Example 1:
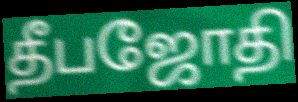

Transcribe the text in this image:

தீபஜோதி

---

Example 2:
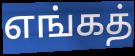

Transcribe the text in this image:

எங்கத்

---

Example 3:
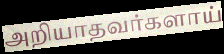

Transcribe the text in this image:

அறியாதவர்களாய்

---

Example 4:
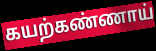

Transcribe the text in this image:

கயற்கண்ணாய்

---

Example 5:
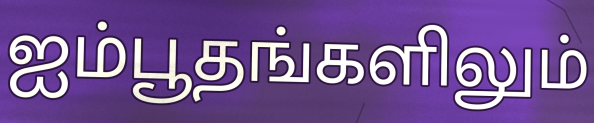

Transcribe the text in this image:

ஐம்பூதங்களிலும்